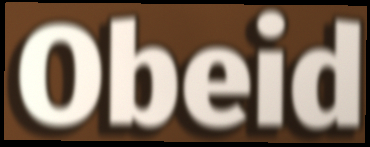
Obeid